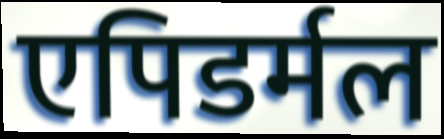
एपिडर्मल